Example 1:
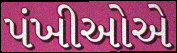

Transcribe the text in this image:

પંખીઓએ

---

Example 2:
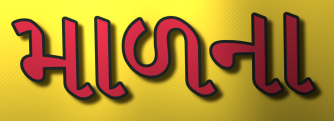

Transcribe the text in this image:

માળના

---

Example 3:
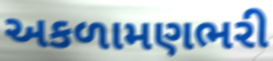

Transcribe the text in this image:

અકળામણભરી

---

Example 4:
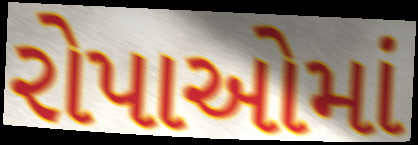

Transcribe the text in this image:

રોપાઓમાં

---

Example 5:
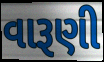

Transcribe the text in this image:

વારૂણી